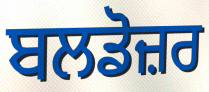
ਬਲਡੋਜ਼ਰ